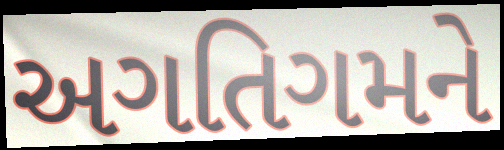
અગતિગમને